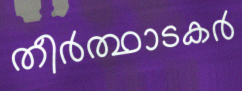
തീർത്ഥാടകർ